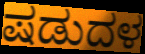
ಷಡುದಳ